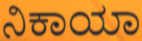
ನಿಕಾಯಾ